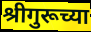
श्रीगुरूच्या